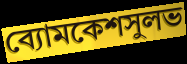
ব্যোমকেশসুলভ